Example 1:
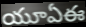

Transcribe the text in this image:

యూఏఈ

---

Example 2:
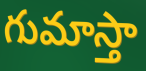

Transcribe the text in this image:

గుమాస్తా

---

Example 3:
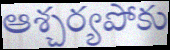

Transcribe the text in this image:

ఆశ్చర్యపోకు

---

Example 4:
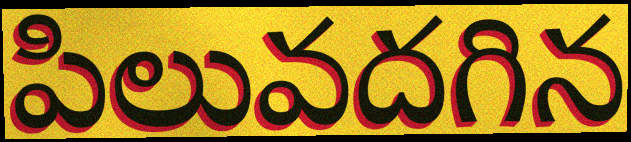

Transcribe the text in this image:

పిలువదగిన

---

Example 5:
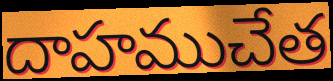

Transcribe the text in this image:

దాహముచేత